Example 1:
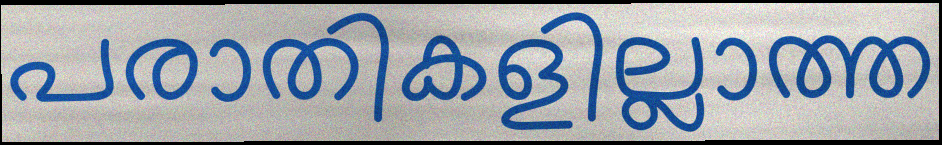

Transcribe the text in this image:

പരാതികളില്ലാത്ത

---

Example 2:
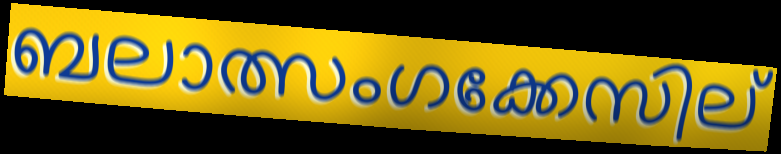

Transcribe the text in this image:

ബലാത്സംഗക്കേസില്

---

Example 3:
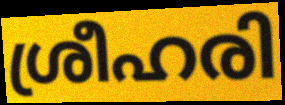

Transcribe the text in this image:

ശ്രീഹരി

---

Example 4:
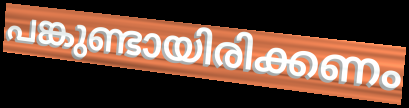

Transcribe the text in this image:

പങ്കുണ്ടായിരിക്കണം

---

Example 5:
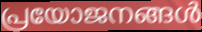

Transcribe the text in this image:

പ്രയോജനങ്ങൾ